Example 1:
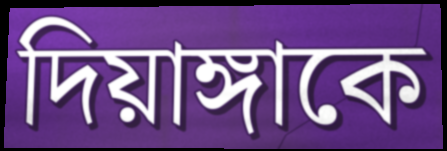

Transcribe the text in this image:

দিয়াঙ্গাকে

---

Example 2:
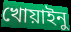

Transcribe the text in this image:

খোয়াইনু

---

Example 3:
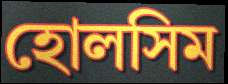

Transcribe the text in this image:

হোলসিম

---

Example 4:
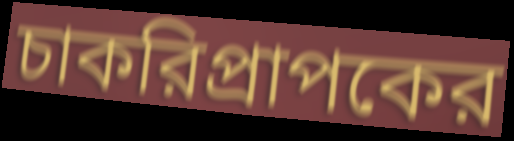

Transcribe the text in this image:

চাকরিপ্রাপকের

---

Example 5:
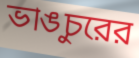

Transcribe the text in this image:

ভাঙচুরের